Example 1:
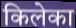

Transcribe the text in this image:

किलेका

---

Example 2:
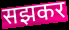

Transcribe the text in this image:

सझकर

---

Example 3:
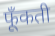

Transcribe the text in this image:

फूँकती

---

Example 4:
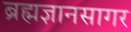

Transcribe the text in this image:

ब्रह्मज्ञानसागर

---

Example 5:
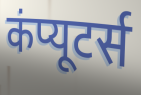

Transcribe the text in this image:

कंप्यूटर्स